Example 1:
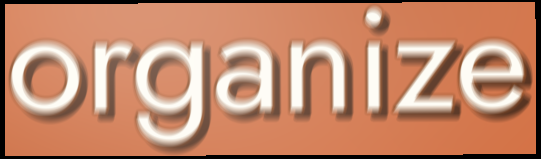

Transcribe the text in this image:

organize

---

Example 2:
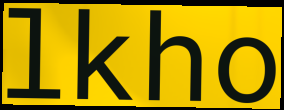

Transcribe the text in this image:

lkho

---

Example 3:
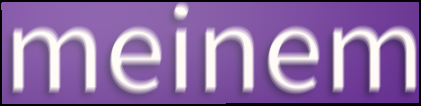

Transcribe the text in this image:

meinem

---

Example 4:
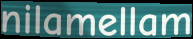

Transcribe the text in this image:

nilamellam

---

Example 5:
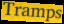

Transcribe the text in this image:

Tramps